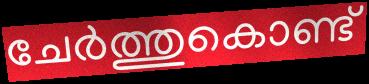
ചേർത്തുകൊണ്ട്